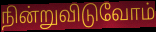
நின்றுவிடுவோம்